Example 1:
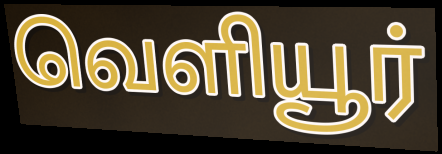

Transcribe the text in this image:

வெளியூர்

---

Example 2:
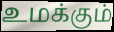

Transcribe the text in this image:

உமக்கும்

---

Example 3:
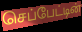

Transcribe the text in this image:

செப்பேட்டின்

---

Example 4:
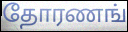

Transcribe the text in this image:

தோரணங்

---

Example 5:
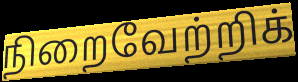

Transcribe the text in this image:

நிறைவேற்றிக்